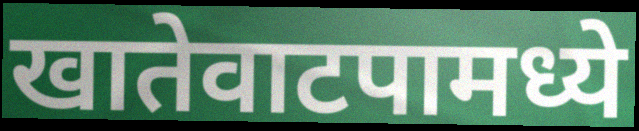
खातेवाटपामध्ये